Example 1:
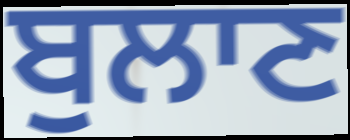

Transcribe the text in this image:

ਬੁਲਾਣ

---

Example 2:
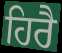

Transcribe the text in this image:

ਹਿਰੈ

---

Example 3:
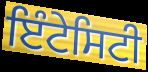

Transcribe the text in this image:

ਇੰਟੇਸਿਟੀ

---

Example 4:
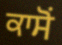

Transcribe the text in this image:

ਕਾਸੋਂ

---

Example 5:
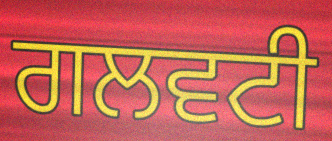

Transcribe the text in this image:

ਗਲਵਟੀ